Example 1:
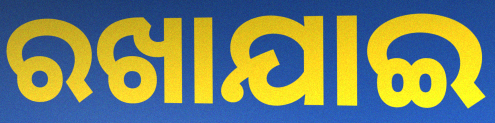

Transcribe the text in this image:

ରଖାଯାଇ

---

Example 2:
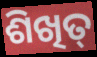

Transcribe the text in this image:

ଶିଖିତ୍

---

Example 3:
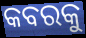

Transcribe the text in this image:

କବରକୁ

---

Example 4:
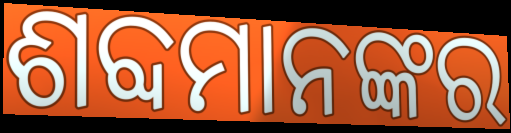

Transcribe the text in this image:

ଶବ୍ଦମାନଙ୍କର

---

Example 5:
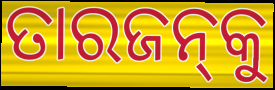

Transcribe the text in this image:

ତାରଜନ୍‌କୁ